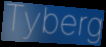
Tyberg